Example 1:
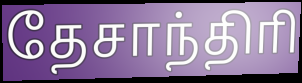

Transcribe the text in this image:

தேசாந்திரி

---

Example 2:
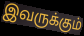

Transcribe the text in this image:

இவருக்கும்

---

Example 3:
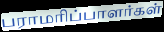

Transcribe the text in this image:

பராமரிப்பாளர்கள்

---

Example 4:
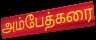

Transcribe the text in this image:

அம்பேத்கரை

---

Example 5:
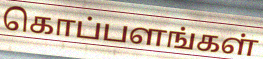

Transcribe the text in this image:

கொப்பளங்கள்